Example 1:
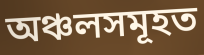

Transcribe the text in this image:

অঞ্চলসমূহত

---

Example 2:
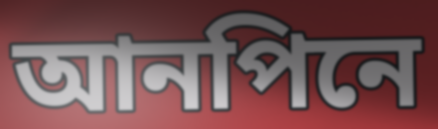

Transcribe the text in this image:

আনপিনে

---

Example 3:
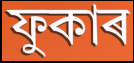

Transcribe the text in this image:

ফুকাৰ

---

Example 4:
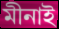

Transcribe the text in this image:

মীনাই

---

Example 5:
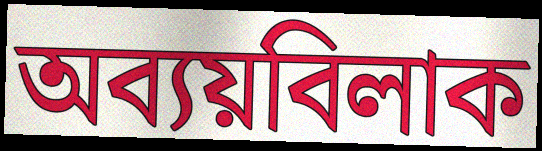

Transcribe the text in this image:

অব্যয়বিলাক